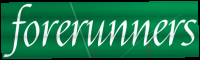
forerunners